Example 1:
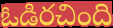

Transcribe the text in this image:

ఓడిరచింది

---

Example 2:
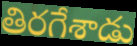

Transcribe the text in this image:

తిరగేశాడు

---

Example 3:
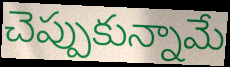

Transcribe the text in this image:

చెప్పుకున్నామే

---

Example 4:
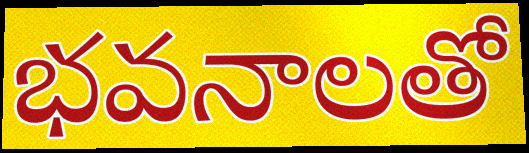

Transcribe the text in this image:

భవనాలతో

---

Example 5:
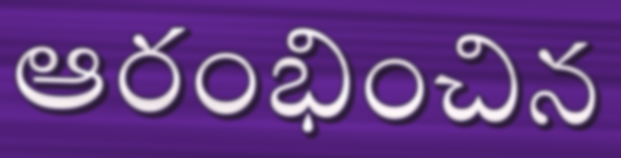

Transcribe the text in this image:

ఆరంభించిన